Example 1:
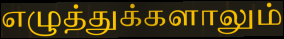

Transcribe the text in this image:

எழுத்துக்களாலும்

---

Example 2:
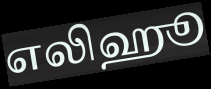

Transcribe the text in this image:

எலிஹூ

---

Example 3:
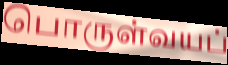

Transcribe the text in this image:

பொருள்வயப்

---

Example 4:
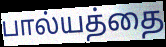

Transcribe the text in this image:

பால்யத்தை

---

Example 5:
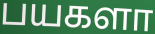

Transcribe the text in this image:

பயகளா